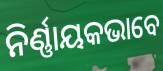
ନିର୍ଣ୍ଣାୟକଭାବେ